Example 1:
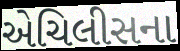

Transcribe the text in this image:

એચિલીસના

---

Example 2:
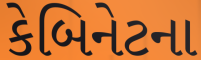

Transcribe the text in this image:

કેબિનેટના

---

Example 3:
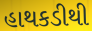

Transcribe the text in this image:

હાથકડીથી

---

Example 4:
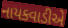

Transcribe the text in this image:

નાયકવાડીએ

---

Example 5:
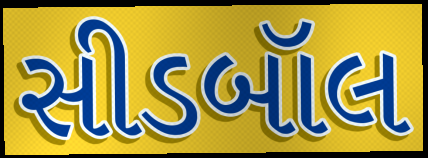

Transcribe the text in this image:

સીડબૉલ